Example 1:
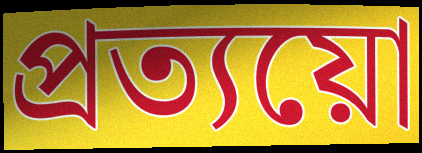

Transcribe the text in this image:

প্ৰত্যয়ো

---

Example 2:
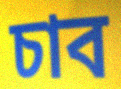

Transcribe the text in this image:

চাব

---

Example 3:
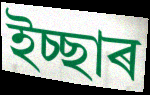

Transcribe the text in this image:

ইচ্ছাৰ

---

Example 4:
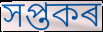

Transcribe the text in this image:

সপ্তকৰ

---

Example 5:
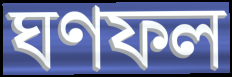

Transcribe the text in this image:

ঘণফল